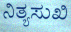
ನಿತ್ಯಸುಖಿ